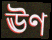
ঊণ